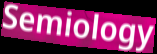
Semiology